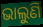
ଭାଲୁଣି